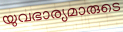
യുവഭാര്യമാരുടെ